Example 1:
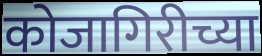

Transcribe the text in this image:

कोजागिरीच्या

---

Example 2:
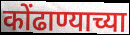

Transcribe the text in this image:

कोंढाण्याच्या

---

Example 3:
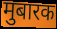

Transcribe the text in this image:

मुबारक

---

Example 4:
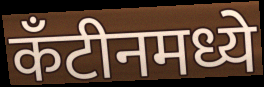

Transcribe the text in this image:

कँटीनमध्ये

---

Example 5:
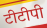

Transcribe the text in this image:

टीटीपी